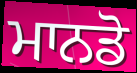
ਮਾਨਡੋ